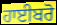
ਹਾਈਬਰੋ